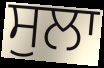
ਸੁਲਾ